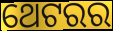
ଥେଟରର